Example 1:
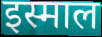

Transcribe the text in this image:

इस्माल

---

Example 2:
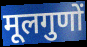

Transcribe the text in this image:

मूलगुणों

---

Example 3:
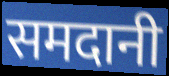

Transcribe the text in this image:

समदानी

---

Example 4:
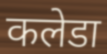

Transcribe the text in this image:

कलेडा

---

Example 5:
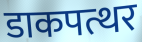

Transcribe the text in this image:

डाकपत्थर